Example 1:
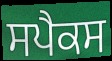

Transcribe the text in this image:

ਸਪੈਕਸ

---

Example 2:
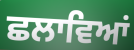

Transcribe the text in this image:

ਛਲਾਵਿਆਂ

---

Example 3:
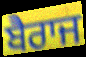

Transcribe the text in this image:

ਬੈਰਾਜ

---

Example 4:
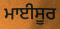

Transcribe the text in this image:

ਮਾਈਸੂਰ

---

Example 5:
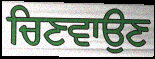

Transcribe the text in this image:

ਚਿਣਵਾਉਣ